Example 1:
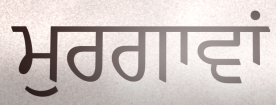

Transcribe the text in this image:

ਮੁਰਗਾਵਾਂ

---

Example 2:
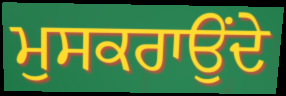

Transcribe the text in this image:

ਮੁਸਕਰਾਉਂਦੇ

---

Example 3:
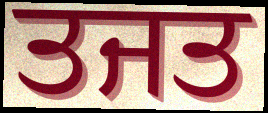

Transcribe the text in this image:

ਤਜਤ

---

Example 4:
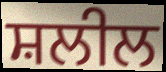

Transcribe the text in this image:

ਸ਼ਲੀਲ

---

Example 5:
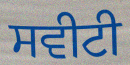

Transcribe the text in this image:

ਸਵੀਟੀ